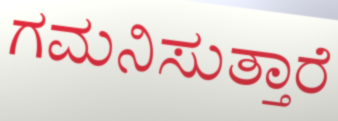
ಗಮನಿಸುತ್ತಾರೆ